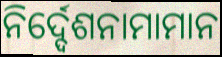
ନିର୍ଦ୍ଦେଶନାମାମାନ